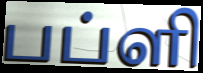
பப்ளி